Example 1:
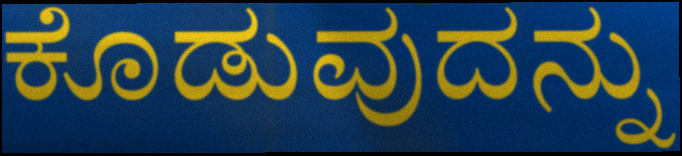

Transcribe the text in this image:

ಕೊಡುವುದನ್ನು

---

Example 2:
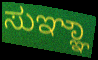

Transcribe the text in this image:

ಸುಞ್ಞಾ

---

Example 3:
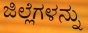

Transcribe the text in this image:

ಜಿಲ್ಲೆಗಳನ್ನು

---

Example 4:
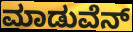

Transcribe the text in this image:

ಮಾಡುವೆನ್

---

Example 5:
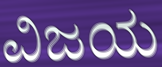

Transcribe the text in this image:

ವಿಜಯ